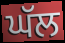
ਘੱਲ